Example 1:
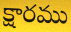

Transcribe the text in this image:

క్షారము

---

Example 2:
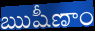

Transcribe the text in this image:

ఋషీణాం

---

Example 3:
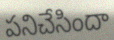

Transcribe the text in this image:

పనిచేసిందా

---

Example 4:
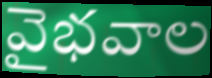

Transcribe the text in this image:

వైభవాల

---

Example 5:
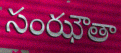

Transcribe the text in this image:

సంఝౌతా